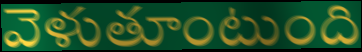
వెళుతూంటుంది